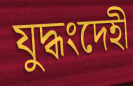
যুদ্ধংদেহী